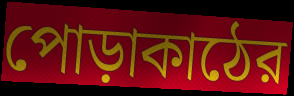
পোড়াকাঠের